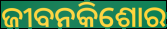
ଜୀବନକିଶୋର